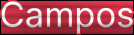
Campos